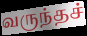
வருந்தச்